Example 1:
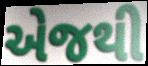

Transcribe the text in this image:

એજથી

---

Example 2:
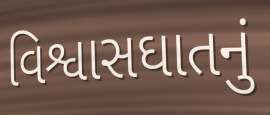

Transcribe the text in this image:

વિશ્વાસઘાતનું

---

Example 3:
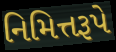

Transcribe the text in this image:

નિમિત્તરૂપે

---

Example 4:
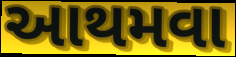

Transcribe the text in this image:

આથમવા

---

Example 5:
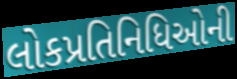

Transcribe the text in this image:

લોકપ્રતિનિધિઓની